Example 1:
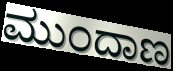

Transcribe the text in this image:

ಮುಂದಾಣ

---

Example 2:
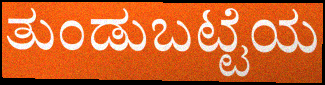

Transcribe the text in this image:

ತುಂಡುಬಟ್ಟೆಯ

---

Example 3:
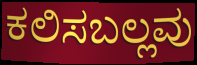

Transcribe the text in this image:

ಕಲಿಸಬಲ್ಲವು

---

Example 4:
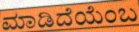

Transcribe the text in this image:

ಮಾಡಿದೆಯೆಂಬ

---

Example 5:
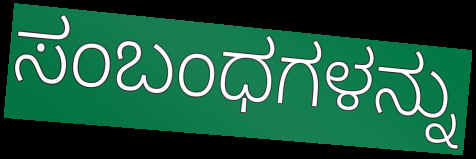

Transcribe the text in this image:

ಸಂಬಂಧಗಳನ್ನು